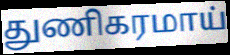
துணிகரமாய்